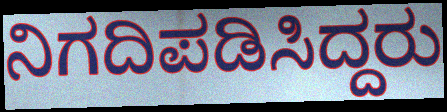
ನಿಗದಿಪಡಿಸಿದ್ದರು